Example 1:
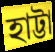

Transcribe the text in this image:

হাট্টা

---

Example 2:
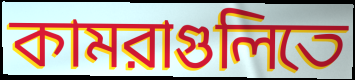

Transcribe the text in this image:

কামরাগুলিতে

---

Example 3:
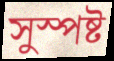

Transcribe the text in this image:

সুস্পষ্ট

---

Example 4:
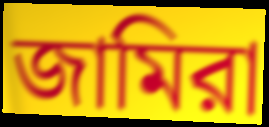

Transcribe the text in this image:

জামিরা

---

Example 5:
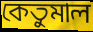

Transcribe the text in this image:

কেতুমাল